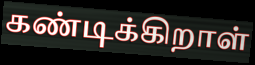
கண்டிக்கிறாள்